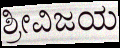
ಶ್ರೀವಿಜಯ